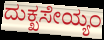
ದುಕ್ಖಸೇಯ್ಯಂ